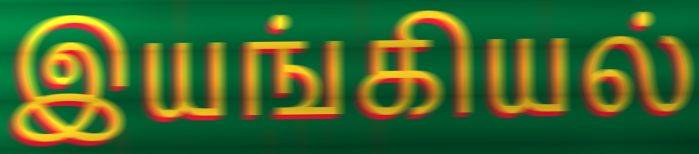
இயங்கியல்